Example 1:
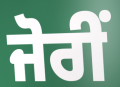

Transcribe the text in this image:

ਜੋਰੀਂ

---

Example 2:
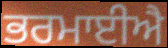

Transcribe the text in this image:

ਭਰਮਾਈਐ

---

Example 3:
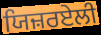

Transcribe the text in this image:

ਯਿਜ਼ਰਏਲੀ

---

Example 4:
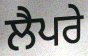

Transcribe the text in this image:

ਲੈਪਰੇ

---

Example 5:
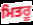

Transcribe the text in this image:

ਮਿਤਰੂ